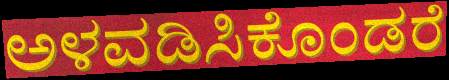
ಅಳವಡಿಸಿಕೊಂಡರೆ